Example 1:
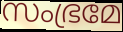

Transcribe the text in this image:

സംഭ്രമേ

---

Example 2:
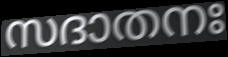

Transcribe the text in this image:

സദാതനഃ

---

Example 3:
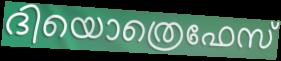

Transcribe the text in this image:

ദിയൊത്രെഫേസ്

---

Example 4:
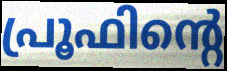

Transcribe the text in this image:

പ്രൂഫിന്റെ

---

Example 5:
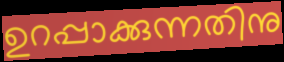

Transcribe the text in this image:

ഉറപ്പാക്കുന്നതിനു